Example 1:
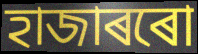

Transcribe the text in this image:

হাজাৰৰো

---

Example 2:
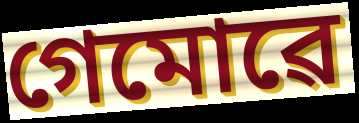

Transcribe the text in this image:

গেমোৱে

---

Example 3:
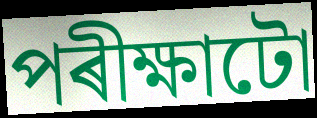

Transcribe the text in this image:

পৰীক্ষাটো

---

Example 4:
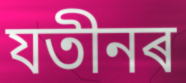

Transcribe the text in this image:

যতীনৰ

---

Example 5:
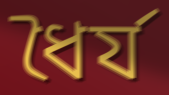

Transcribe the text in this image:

ধৈৰ্য